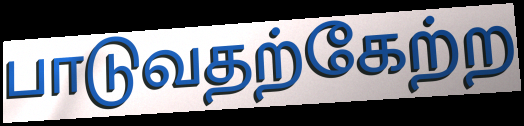
பாடுவதற்கேற்ற